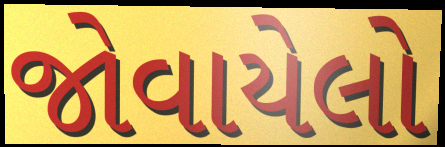
જોવાયેલો